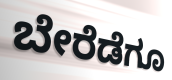
ಬೇರೆಡೆಗೂ